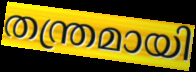
തന്ത്രമായി